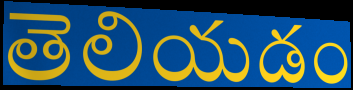
తెలియడం